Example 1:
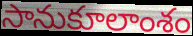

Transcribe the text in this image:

సానుకూలాంశం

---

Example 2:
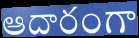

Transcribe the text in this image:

ఆదారంగా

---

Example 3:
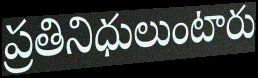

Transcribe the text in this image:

ప్రతినిధులుంటారు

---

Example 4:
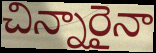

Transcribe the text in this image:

చిన్నారైనా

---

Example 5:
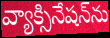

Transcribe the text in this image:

వ్యాక్సినేషన్‌ను